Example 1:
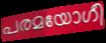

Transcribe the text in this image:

പരമയോഗീ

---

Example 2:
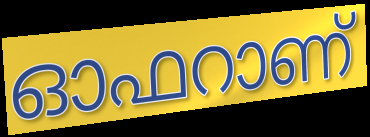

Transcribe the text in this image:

ഓഫറാണ്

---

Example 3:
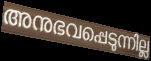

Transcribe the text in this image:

അനുഭവപ്പെടുന്നില്ല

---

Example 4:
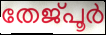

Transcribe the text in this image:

തേജ്പൂർ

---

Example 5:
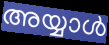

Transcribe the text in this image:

അയ്യാൾ